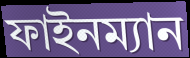
ফাইনম্যান